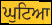
ਘੁਟਿਆ